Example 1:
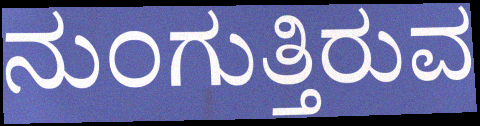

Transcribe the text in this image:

ನುಂಗುತ್ತಿರುವ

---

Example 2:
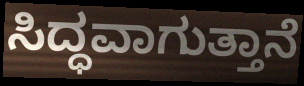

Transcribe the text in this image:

ಸಿದ್ಧವಾಗುತ್ತಾನೆ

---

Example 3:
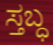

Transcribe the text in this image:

ಸ್ತಬ್ಧ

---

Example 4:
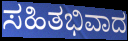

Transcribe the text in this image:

ಸಹಿತಭಿವಾದ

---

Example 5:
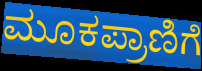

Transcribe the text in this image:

ಮೂಕಪ್ರಾಣಿಗೆ